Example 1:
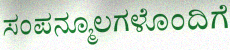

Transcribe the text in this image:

ಸಂಪನ್ಮೂಲಗಳೊಂದಿಗೆ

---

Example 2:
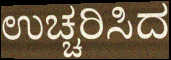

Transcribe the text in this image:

ಉಚ್ಚರಿಸಿದ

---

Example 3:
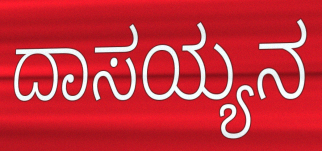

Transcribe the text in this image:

ದಾಸಯ್ಯನ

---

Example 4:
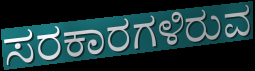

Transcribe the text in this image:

ಸರಕಾರಗಳಿರುವ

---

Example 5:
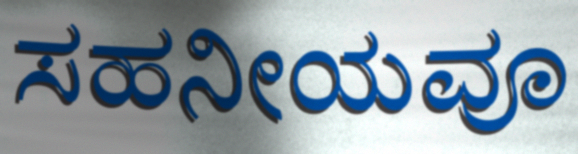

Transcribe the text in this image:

ಸಹನೀಯವೂ